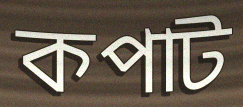
কপাট